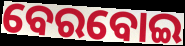
ବେରବୋଇ